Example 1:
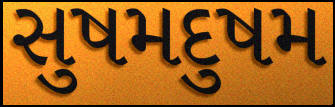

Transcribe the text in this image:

સુષમદુષમ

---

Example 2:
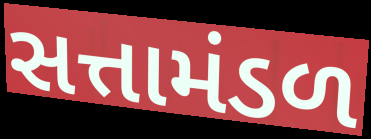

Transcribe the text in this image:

સત્તામંડળ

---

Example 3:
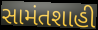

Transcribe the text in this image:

સામંતશાહી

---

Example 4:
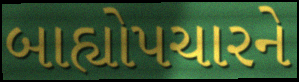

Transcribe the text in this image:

બાહ્યોપચારને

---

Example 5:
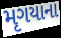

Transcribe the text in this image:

મૃગયાના